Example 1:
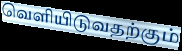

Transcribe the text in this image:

வெளியிடுவதற்கும்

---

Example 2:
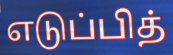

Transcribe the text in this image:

எடுப்பித்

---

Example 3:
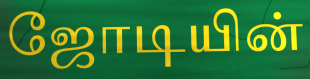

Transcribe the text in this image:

ஜோடியின்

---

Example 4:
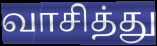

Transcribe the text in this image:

வாசித்து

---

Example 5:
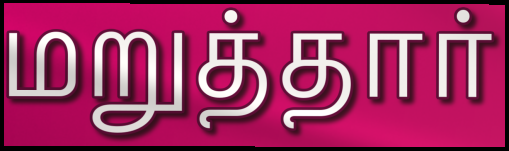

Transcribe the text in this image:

மறுத்தார்